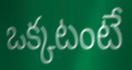
ఒక్కటంటే